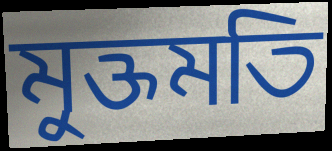
মুক্তমতি